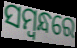
ସମ୍ୱନ୍ଧରେ